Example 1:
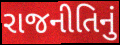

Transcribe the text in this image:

રાજનીતિનું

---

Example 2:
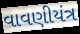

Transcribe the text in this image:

વાવણીયંત્ર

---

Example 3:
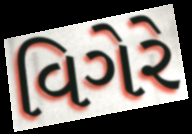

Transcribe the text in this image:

વિગેરે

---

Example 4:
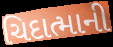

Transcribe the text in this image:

ચિદાત્માની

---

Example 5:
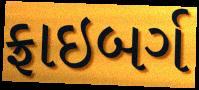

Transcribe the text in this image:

ફ્રાઇબર્ગ